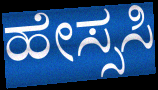
ಹೇಸ್ಸಸಿ